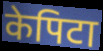
केपिटा